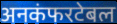
अनकंफरटेबल